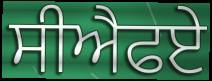
ਸੀਐਫਏ